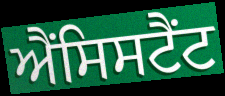
ਐਂਸਿਸਟੈਂਟ